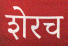
शेरच